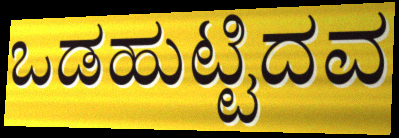
ಒಡಹುಟ್ಟಿದವ